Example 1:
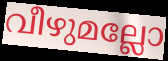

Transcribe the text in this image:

വീഴുമല്ലോ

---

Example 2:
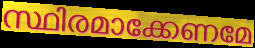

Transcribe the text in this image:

സ്ഥിരമാക്കേണമേ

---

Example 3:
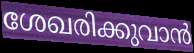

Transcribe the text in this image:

ശേഖരിക്കുവാൻ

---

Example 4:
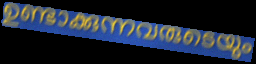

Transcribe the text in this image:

ഉണ്ടാക്കുന്നവരുടെയും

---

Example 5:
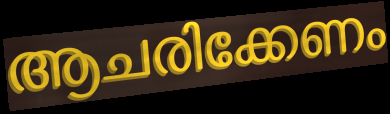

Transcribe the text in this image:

ആചരിക്കേണം